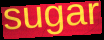
sugar